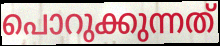
പൊറുക്കുന്നത്